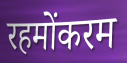
रहमोंकरम